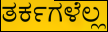
ತರ್ಕಗಳೆಲ್ಲ